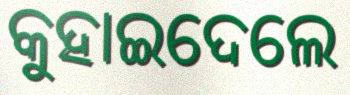
କୁହାଇଦେଲେ